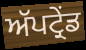
ਅੱਪਟ੍ਰੇਂਡ